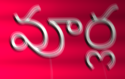
వూర్ల